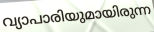
വ്യാപാരിയുമായിരുന്ന